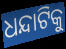
ଧନ୍ଦାଟିକୁ